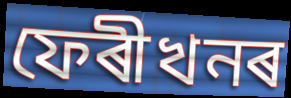
ফেৰীখনৰ